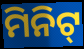
ମିନିଟ୍